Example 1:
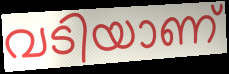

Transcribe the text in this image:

വടിയാണ്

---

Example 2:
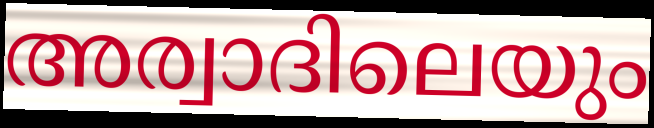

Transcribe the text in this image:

അര്വാദിലെയും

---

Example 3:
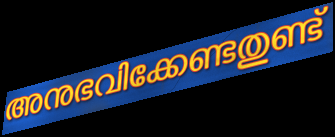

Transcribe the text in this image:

അനുഭവിക്കേണ്ടതുണ്ട്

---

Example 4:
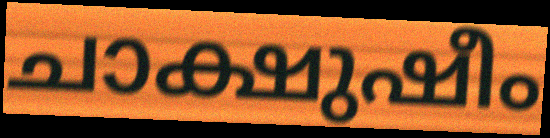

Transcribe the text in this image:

ചാക്ഷുഷീം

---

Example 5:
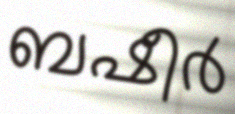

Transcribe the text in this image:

ബഷീർ